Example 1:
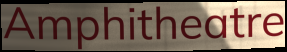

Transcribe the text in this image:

Amphitheatre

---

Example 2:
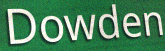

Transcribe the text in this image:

Dowden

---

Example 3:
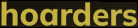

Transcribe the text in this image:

hoarders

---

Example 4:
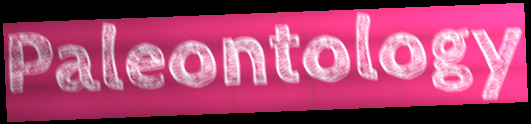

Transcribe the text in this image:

Paleontology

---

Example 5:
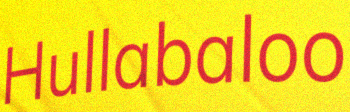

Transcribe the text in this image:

Hullabaloo